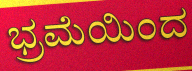
ಭ್ರಮೆಯಿಂದ